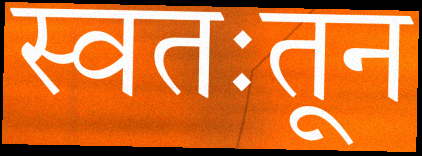
स्वतःतून